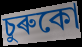
চুৰুকো